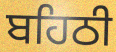
ਬਹਿਠੀ